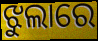
ଝୁଲାରେ